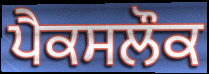
ਪੈਕਸਲੌਕ